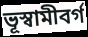
ভূস্বামীবর্গ